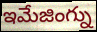
ఇమేజింగ్ను